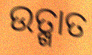
ଉତ୍ଖାତ